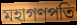
মহাগণপতি